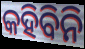
କହିବିନି